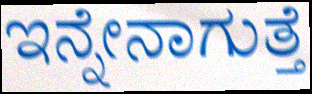
ಇನ್ನೇನಾಗುತ್ತೆ